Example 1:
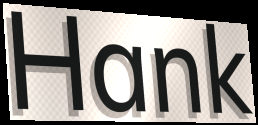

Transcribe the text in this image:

Hank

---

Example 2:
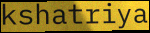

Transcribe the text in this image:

kshatriya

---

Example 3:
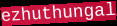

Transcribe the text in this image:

ezhuthungal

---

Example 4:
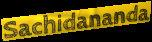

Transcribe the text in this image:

Sachidananda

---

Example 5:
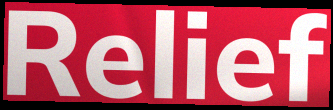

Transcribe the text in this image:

Relief